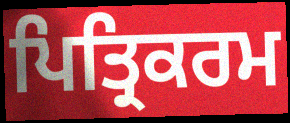
ਪਿਤ੍ਰਿਕਰਮ